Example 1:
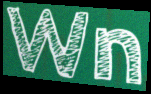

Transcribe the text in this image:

Wn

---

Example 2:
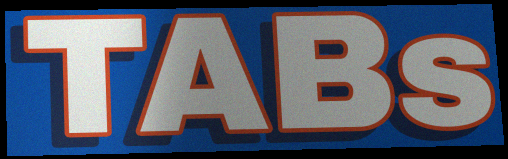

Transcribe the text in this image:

TABs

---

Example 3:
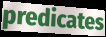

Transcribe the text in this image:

predicates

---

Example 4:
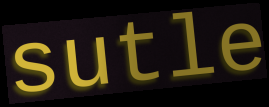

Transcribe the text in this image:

sutle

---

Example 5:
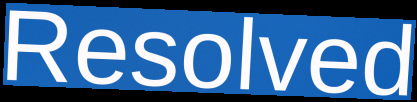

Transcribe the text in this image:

Resolved